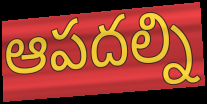
ఆపదల్ని